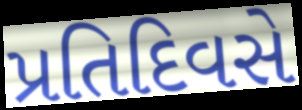
પ્રતિદિવસે